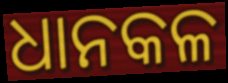
ଧାନକଳ